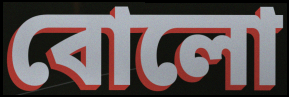
বোলো